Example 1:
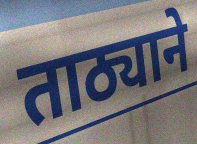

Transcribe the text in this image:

ताठ्याने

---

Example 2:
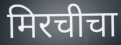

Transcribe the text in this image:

मिरचीचा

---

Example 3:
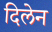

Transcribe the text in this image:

दिलेन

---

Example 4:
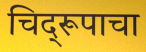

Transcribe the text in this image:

चिद्‌रूपाचा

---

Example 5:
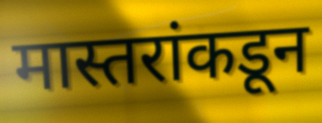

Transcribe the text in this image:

मास्तरांकडून